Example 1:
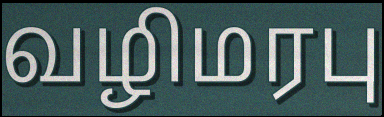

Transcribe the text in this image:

வழிமரபு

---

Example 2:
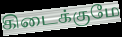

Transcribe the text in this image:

கிடைக்குமே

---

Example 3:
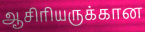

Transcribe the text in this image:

ஆசிரியருக்கான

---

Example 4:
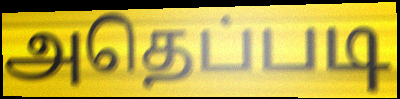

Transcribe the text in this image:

அதெப்படி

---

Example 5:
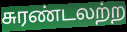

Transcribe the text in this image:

சுரண்டலற்ற